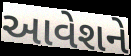
આવેશને